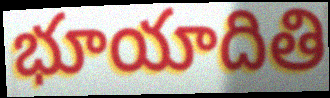
భూయాదితి